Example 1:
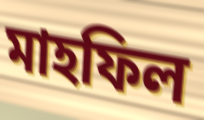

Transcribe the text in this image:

মাহফিল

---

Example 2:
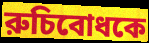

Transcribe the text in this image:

রুচিবোধকে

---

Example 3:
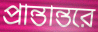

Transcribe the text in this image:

প্রান্তান্তরে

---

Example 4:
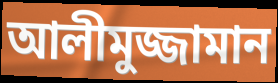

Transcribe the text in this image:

আলীমুজ্জামান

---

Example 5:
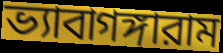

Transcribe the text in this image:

ভ্যাবাগঙ্গারাম